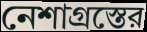
নেশাগ্রস্তের